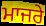
ਮਾਜਰੇ